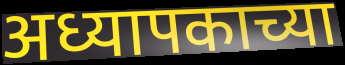
अध्यापकाच्या